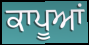
ਕਾਪੂਆਂ